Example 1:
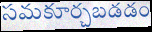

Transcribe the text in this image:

సమకూర్చబడడం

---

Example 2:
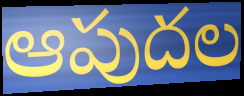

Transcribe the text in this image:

ఆపుదల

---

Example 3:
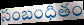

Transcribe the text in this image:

సంబంధితం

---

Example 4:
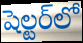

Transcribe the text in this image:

షెల్టర్‌లో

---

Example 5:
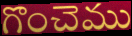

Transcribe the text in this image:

గొంచెము